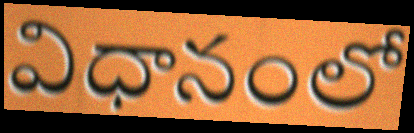
విధానంలో